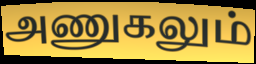
அணுகலும்